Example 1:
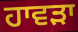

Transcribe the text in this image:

ਹਾਵਡ਼ਾ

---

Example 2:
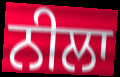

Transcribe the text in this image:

ਨੀਲਾ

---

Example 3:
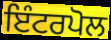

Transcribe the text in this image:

ਇੰਟਰਪੋਲ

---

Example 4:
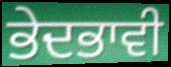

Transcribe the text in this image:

ਭੇਦਭਾਵੀ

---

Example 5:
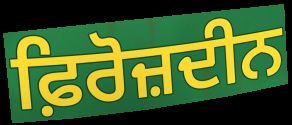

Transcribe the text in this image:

ਫ਼ਿਰੋਜ਼ਦੀਨ